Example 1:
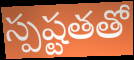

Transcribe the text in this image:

స్పష్టతతో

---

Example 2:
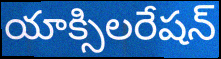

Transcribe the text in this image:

యాక్సిలరేషన్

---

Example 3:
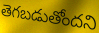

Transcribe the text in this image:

తెగబడుతోందని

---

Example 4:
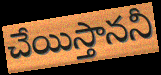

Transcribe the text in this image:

చేయిస్తాననీ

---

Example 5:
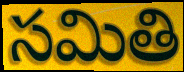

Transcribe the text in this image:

సమితి